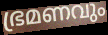
ഭ്രമണവും